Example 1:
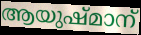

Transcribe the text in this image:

ആയുഷ്മാന്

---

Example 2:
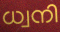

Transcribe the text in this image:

ധ്വനി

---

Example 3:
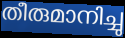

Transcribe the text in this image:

തീരുമാനിച്ചു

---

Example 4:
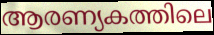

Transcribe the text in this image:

ആരണ്യകത്തിലെ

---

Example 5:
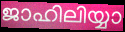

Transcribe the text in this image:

ജാഹിലിയ്യാ